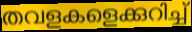
തവളകളെക്കുറിച്ച്